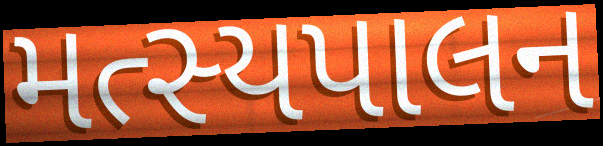
મત્સ્યપાલન